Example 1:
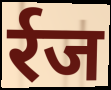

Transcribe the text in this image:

र्रज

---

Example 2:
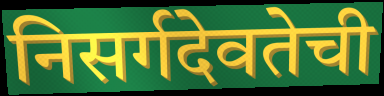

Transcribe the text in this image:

निसर्गदेवतेची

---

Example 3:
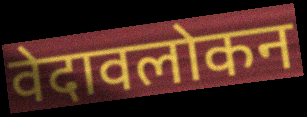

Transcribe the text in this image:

वेदावलोकन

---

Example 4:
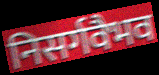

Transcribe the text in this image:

निसर्गवैभव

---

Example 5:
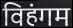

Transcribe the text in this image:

विहंगम